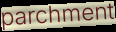
parchment